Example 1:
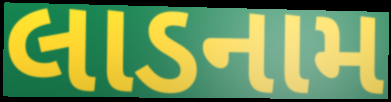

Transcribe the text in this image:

લાડનામ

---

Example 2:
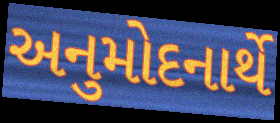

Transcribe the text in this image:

અનુમોદનાર્થે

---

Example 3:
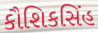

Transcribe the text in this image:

કૌશિકસિંહ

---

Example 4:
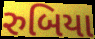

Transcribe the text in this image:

રુબિયા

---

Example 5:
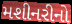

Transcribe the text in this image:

મશીનરીનો